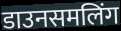
डाउनसमलिंग